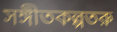
সঙ্গীতকল্পতরু